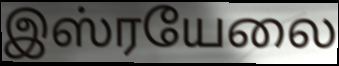
இஸ்ரயேலை